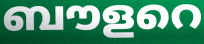
ബൗളറെ